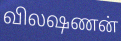
விலஷணன்